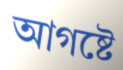
আগষ্টে